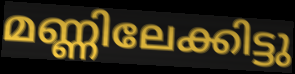
മണ്ണിലേക്കിട്ടു